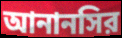
আনানসির